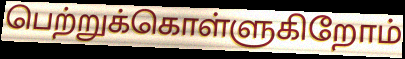
பெற்றுக்கொள்ளுகிறோம்